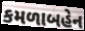
કમળાબહેન